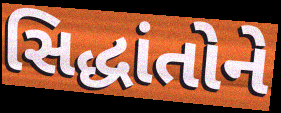
સિદ્ધાંતોને